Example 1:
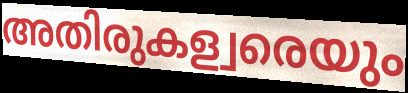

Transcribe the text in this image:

അതിരുകള്വരെയും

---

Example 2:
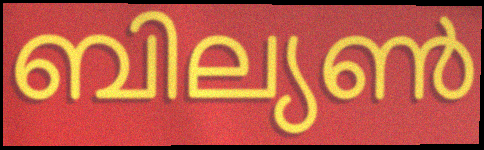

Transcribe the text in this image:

ബില്യൺ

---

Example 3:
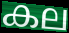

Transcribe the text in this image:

കല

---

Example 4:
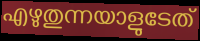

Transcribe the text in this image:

എഴുതുന്നയാളുടേത്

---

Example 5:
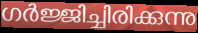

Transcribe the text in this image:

ഗർജ്ജിച്ചിരിക്കുന്നു